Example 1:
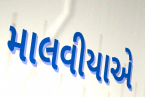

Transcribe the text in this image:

માલવીયાએ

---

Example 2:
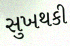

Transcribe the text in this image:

સુખથકી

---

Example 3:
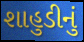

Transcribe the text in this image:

શાહુડીનું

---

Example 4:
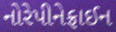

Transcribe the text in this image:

નોરેપીનેફ્રાઈન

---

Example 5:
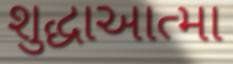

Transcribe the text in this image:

શુદ્ધાઆત્મા